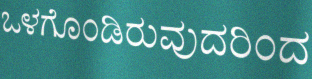
ಒಳಗೊಂಡಿರುವುದರಿಂದ